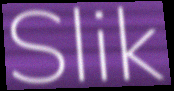
Slik